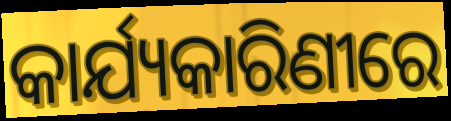
କାର୍ଯ୍ୟକାରିଣୀରେ